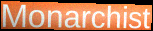
Monarchist